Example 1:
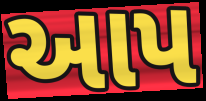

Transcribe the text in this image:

આપ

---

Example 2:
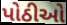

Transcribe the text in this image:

પોઠીઓ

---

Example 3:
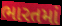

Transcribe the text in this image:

ભારતમાં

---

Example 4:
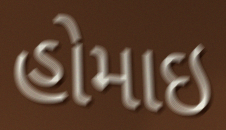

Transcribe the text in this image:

હોમાઇ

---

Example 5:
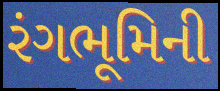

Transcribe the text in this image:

રંગભૂમિની